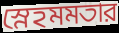
স্নেহমমতার